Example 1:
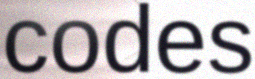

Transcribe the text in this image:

codes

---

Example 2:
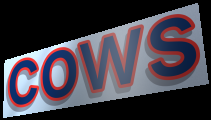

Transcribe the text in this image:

cows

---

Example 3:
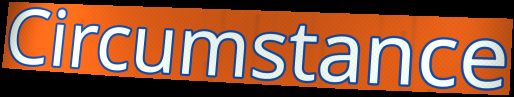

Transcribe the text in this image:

Circumstance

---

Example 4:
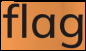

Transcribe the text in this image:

flag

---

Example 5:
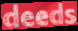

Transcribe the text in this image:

deeds